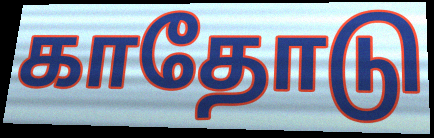
காதோடு